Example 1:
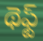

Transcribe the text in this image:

థెఫ్ట్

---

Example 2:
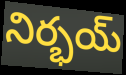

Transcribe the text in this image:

నిర్భయ్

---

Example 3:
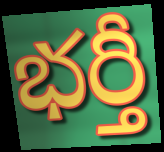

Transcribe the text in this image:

భర్తీ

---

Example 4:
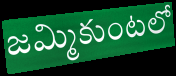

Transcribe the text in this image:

జమ్మికుంటలో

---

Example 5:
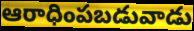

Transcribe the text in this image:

ఆరాధింపబడువాడు